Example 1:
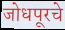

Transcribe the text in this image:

जोधपूरचे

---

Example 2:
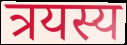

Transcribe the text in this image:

त्रयस्य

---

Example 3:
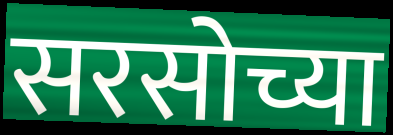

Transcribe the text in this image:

सरसोच्या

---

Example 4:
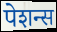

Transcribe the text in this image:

पेशन्स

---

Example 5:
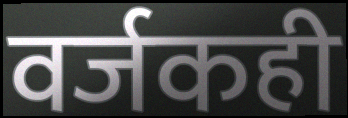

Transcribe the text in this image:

वर्जकही